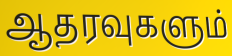
ஆதரவுகளும்